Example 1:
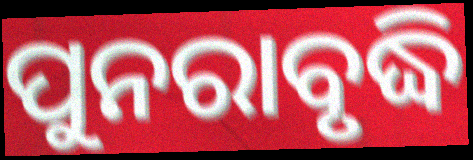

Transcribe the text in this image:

ପୁନରାବୃଦ୍ଧି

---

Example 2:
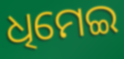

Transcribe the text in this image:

ଧିମେଇ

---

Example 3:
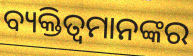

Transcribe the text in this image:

ବ୍ୟକ୍ତିତ୍ୱମାନଙ୍କର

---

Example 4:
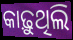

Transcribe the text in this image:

କାଢ଼ୁଥିଲି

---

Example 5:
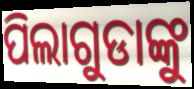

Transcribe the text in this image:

ପିଲାଗୁଡାଙ୍କୁ